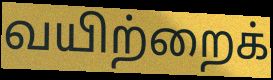
வயிற்றைக்